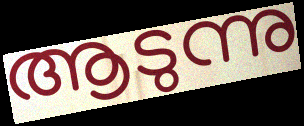
ആടുന്നു